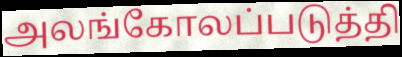
அலங்கோலப்படுத்தி